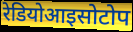
रेडियोआइसोटोप